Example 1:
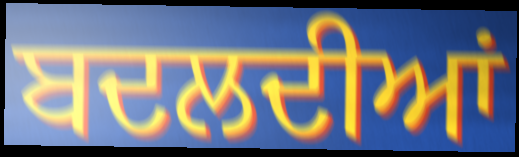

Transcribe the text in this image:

ਬਦਲਦੀਆਂ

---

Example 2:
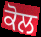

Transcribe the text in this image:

ਕੋਲ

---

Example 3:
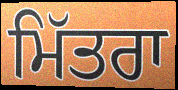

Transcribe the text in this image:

ਮਿੱਤਰਾ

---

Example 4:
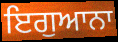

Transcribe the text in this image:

ਇਗੁਆਨਾ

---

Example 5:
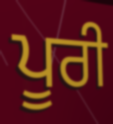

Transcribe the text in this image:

ਪੂਰੀ